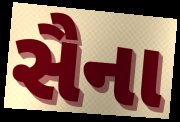
સૈના